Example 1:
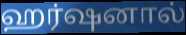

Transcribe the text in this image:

ஹர்ஷனால்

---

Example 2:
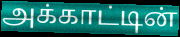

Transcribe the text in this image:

அக்காட்டின்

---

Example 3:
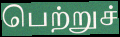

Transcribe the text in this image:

பெற்றுச்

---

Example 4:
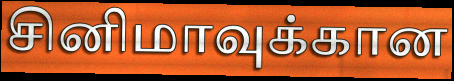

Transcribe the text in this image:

சினிமாவுக்கான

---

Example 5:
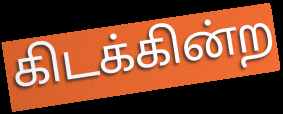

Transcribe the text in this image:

கிடக்கின்ற